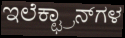
ಇಲೆಕ್ಟ್ರಾನ್‍ಗಳ